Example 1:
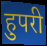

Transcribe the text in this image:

हुपरी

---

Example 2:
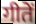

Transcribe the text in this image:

गीतें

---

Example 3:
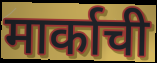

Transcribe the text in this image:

मार्काची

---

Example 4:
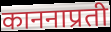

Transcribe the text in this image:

काननाप्रती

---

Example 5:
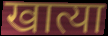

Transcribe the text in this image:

खात्या